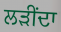
ਲੜੀਂਦਾ